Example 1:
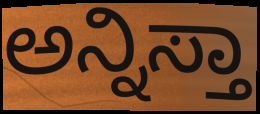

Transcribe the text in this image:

ಅನ್ನಿಸ್ತಾ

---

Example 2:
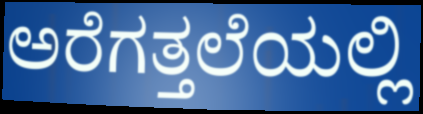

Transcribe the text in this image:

ಅರೆಗತ್ತಲೆಯಲ್ಲಿ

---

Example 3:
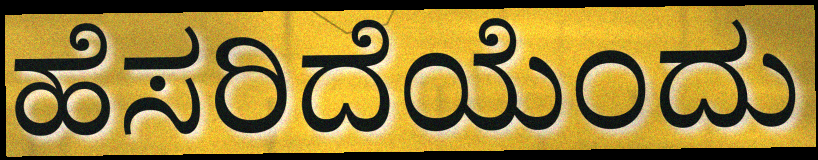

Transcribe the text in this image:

ಹೆಸರಿದೆಯೆಂದು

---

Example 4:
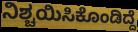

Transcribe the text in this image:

ನಿಶ್ಚಯಿಸಿಕೊಂಡಿದ್ದೆ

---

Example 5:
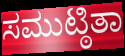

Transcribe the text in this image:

ಸಮುಟ್ಠಿತಾ